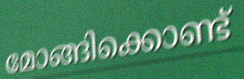
മോങ്ങിക്കൊണ്ട്